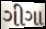
ગીગા